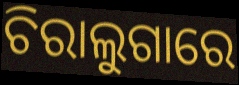
ଚିରାଲୁଗାରେ